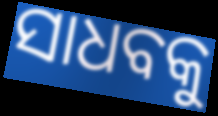
ସାଧବକୁ